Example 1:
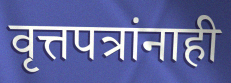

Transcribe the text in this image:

वृत्तपत्रांनाही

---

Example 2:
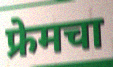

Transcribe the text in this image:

फ्रेमचा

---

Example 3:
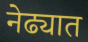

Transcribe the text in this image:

नेढ्यात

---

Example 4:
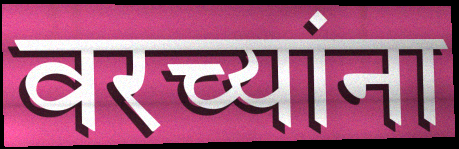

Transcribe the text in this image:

वरच्यांना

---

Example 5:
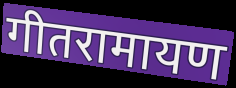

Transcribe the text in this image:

गीतरामायण